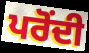
ਪਰੋਂਦੀ